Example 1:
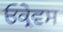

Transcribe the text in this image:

ਓਕ੍ਰੇਵਸ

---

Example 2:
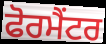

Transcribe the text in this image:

ਫੋਰਮੈਂਟਰ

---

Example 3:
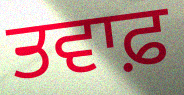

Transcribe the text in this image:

ਤਵਾਫ਼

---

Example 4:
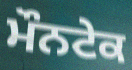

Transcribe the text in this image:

ਮੌਨਟੇਕ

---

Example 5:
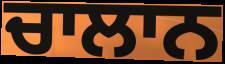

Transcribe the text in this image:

ਚਾਲਾਨ